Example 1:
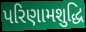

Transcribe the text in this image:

પરિણામશુદ્ધિ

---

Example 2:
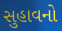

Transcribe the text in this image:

સુહાવનો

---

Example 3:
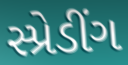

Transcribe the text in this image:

સ્પ્રેડીંગ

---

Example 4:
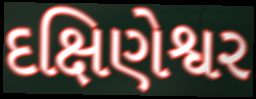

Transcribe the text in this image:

દક્ષિણેશ્વર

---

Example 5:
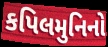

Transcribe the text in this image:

કપિલમુનિનો